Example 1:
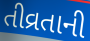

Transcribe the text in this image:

તીવ્રતાની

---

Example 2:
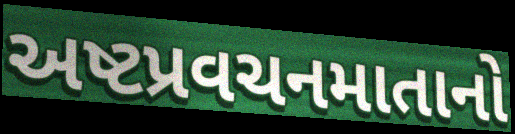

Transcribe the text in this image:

અષ્ટપ્રવચનમાતાનો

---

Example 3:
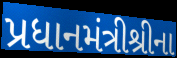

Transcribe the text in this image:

પ્રધાનમંત્રીશ્રીના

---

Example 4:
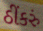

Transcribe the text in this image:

ઠીંકરું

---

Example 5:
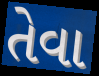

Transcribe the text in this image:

તેવા